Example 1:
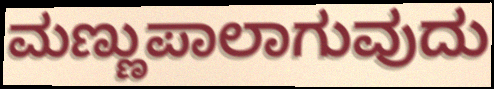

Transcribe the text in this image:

ಮಣ್ಣುಪಾಲಾಗುವುದು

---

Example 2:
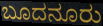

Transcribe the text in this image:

ಬೂದನೂರು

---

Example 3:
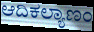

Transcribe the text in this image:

ಆದಿಕಲ್ಯಾಣಂ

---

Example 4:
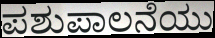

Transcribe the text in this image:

ಪಶುಪಾಲನೆಯು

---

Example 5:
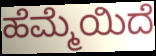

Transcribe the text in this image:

ಹೆಮ್ಮೆಯಿದೆ